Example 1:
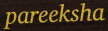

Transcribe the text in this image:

pareeksha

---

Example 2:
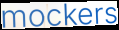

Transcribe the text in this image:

mockers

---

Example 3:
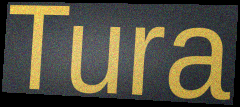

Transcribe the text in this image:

Tura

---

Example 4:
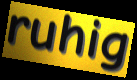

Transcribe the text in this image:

ruhig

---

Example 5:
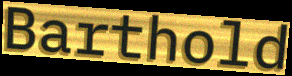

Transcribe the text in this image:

Barthold